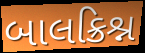
બાલક્રિશ્ન